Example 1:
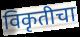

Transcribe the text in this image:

विकृतीचा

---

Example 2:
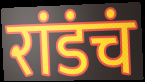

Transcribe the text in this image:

रांडंचं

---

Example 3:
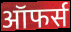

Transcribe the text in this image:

ऑफर्स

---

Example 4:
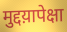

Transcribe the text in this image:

मुद्दय़ापेक्षा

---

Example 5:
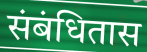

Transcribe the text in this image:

संबंधितास